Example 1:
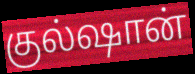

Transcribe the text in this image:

குல்ஷான்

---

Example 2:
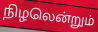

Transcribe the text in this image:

நிழலென்றும்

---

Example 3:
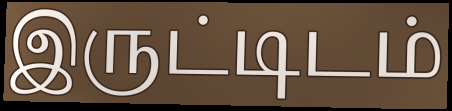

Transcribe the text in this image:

இருட்டிடம்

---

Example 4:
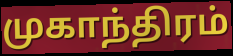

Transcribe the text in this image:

முகாந்திரம்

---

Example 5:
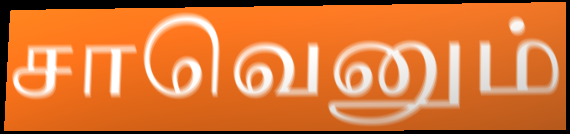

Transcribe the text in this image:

சாவெனும்